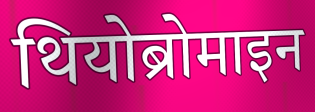
थियोब्रोमाइन